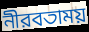
নীরবতাময়